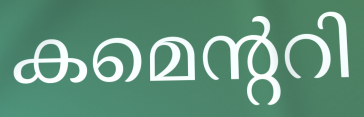
കമെന്ററി